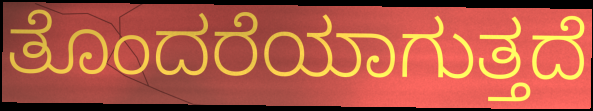
ತೊಂದರೆಯಾಗುತ್ತದೆ